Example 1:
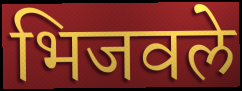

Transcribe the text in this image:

भिजवले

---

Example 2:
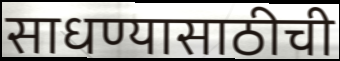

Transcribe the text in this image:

साधण्यासाठीची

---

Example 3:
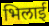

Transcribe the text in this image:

भिलाई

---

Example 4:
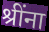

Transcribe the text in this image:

श्रींना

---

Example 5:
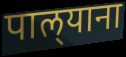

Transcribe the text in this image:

पाल्याना